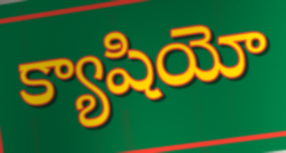
క్యాషియో